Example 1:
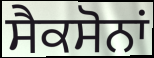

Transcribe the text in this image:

ਸੈਕਸੋਨਾਂ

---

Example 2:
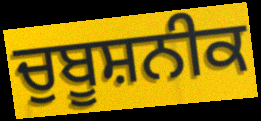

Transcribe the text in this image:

ਚੁਬੂਸ਼ਨੀਕ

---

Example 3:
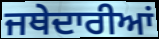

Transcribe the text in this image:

ਜਥੇਦਾਰੀਆਂ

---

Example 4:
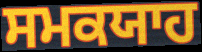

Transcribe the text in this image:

ਸਮਕਯਾਹ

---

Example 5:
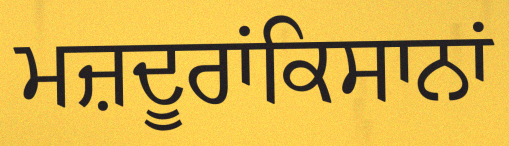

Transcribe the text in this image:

ਮਜ਼ਦੂਰਾਂਕਿਸਾਨਾਂ